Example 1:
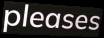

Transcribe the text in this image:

pleases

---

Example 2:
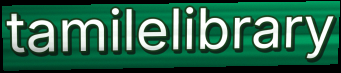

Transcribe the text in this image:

tamilelibrary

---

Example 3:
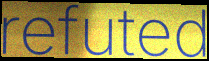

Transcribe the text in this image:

refuted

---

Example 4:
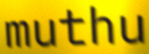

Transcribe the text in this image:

muthu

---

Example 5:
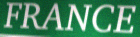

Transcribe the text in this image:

FRANCE